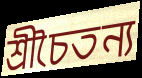
শ্রীচৈতন্য